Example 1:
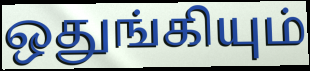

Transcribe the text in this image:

ஒதுங்கியும்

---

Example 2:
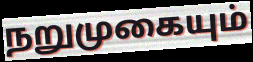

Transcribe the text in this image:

நறுமுகையும்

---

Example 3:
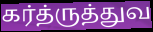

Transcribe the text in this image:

கர்த்ருத்துவ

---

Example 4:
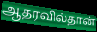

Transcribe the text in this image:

ஆதரவில்தான்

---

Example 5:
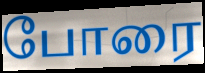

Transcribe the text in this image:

போரை